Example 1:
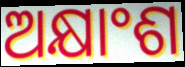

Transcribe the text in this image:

ଅକ୍ଷାଂଶ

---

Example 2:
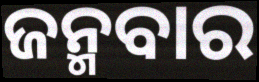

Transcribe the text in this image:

ଜନ୍ମବାର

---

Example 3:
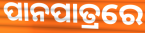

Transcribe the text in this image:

ପାନପାତ୍ରରେ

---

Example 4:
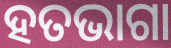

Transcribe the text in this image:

ହତଭାଗା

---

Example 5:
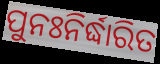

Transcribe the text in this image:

ପୁନଃନିର୍ଦ୍ଧାରିତ